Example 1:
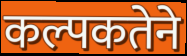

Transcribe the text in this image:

कल्पकतेने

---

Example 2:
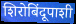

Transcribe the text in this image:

शिरोबिंदूपाशी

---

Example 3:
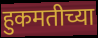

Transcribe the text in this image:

हुकमतीच्या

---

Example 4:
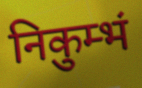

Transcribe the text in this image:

निकुम्भं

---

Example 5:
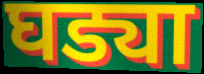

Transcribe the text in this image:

घड्या